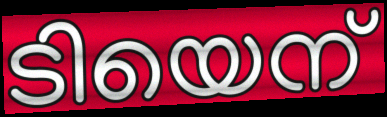
ടിയെന്